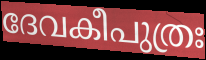
ദേവകീപുത്രഃ